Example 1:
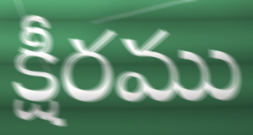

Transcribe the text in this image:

క్షీరము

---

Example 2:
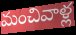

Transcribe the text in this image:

మంచివాళ్ల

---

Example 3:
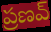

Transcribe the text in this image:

ప్రణవ్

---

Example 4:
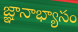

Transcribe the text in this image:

జ్ఞానాభ్యాసం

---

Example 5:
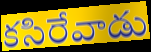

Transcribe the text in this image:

కసిరేవాడు